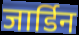
जार्डिन